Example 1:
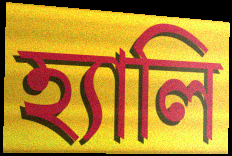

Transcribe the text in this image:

হ্যালি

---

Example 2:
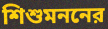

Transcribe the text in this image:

শিশুমননের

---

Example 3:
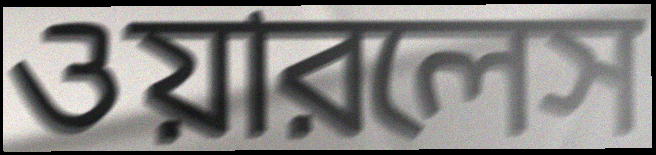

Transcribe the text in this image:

ওয়ারলেস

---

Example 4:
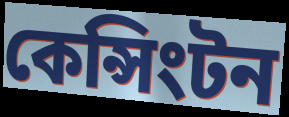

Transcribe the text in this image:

কেন্সিংটন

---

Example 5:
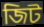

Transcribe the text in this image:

জিট